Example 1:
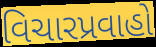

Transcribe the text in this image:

વિચારપ્રવાહો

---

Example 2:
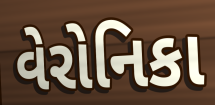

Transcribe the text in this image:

વેરોનિકા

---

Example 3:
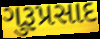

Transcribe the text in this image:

ગુરૂપ્રસાદ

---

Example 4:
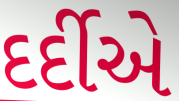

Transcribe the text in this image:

દર્દીએ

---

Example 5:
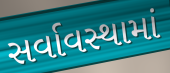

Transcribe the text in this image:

સર્વાવસ્થામાં